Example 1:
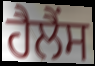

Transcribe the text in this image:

ਹੈਲੈਂਸ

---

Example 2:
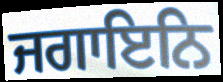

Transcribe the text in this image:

ਜਗਾਇਨਿ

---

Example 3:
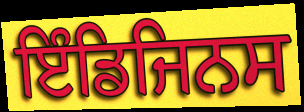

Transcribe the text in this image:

ਇੰਡਿਜਿਨਸ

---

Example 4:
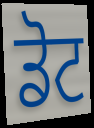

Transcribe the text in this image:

ਡੋਟ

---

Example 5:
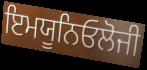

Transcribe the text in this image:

ਇਮਯੂਨਿਓਲੋਜੀ